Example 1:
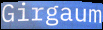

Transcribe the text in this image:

Girgaum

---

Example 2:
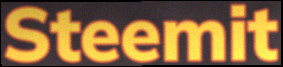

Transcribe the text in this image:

Steemit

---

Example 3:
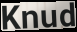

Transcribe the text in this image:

Knud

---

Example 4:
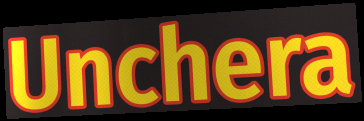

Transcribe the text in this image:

Unchera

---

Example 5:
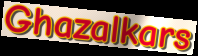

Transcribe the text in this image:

Ghazalkars